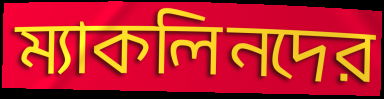
ম্যাকলিনদের